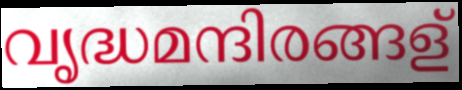
വൃദ്ധമന്ദിരങ്ങള്